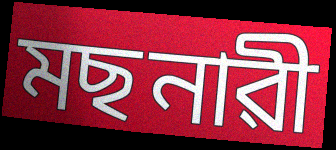
মছনাৱী